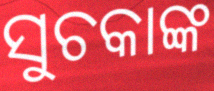
ସୁଚକାଙ୍କ